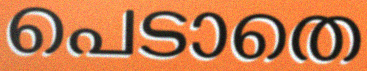
പെടാതെ